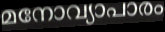
മനോവ്യാപാരം